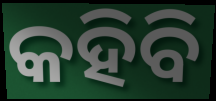
କହିବି